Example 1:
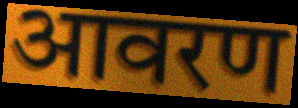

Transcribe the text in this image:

आवरण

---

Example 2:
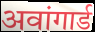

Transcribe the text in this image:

अवांगार्ड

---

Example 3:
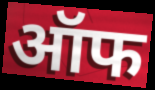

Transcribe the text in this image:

ऑफ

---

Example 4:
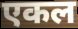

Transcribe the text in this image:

एकल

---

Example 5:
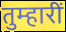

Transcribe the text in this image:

तुम्हारीं